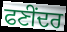
ਫਣੀਂਦਰ